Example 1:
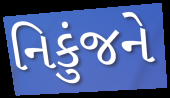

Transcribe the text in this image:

નિકુંજને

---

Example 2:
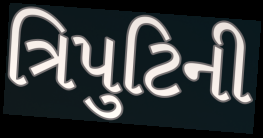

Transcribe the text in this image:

ત્રિપુટિની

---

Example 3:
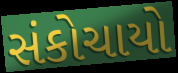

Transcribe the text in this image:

સંકોચાયો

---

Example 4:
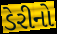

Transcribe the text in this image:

ડેરીનો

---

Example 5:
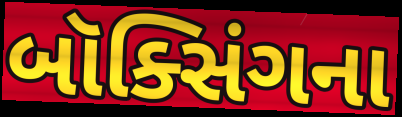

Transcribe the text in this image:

બૉક્સિંગના